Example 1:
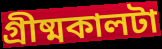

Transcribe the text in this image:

গ্রীষ্মকালটা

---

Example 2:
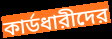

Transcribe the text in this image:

কার্ডধারীদের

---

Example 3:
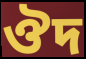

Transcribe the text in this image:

ঔদ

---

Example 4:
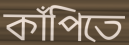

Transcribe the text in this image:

কাঁপিতে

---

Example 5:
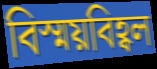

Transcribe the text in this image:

বিস্ময়বিহ্বল